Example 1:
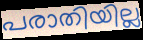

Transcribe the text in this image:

പരാതിയില്ല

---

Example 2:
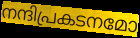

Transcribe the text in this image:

നന്ദിപ്രകടനമോ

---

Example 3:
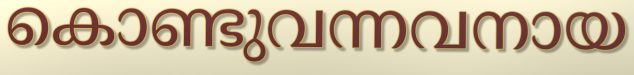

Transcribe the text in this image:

കൊണ്ടുവന്നവനായ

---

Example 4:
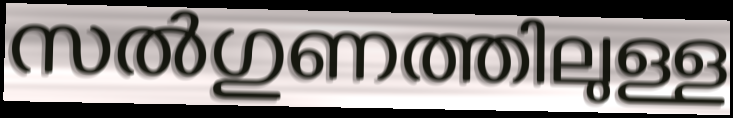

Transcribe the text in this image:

സൽഗുണത്തിലുള്ള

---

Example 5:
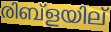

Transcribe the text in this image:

രിബ്ളയില്